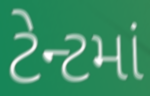
ટેન્ટમાં